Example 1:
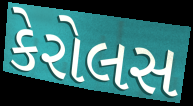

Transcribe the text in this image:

કેરોલસ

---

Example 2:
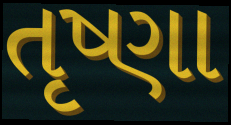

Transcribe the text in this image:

તૃષ્ણા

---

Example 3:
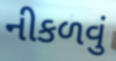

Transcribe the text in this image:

નીકળવું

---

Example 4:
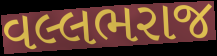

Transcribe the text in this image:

વલ્લભરાજ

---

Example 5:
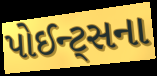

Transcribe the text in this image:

પોઈન્ટ્સના